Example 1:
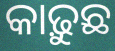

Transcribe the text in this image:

କାଢ଼ୁଛ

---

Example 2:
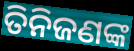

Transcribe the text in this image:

ତିନିଜଣଙ୍କ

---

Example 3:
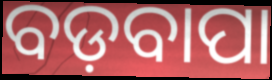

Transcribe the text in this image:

ବଡ଼ବାପା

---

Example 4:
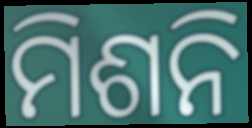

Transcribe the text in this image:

ମିଶନି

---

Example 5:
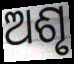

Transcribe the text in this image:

ଅଶୃ